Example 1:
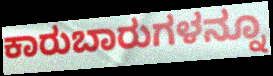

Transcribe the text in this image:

ಕಾರುಬಾರುಗಳನ್ನೂ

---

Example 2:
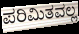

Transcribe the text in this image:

ಪರಿಮಿತವಲ್ಲ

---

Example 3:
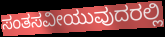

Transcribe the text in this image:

ಸಂತಸವೀಯುವುದರಲ್ಲಿ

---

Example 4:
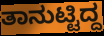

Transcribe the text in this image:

ತಾನುಟ್ಟಿದ್ದ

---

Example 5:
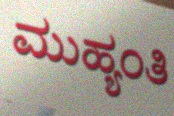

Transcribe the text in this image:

ಮುಹ್ಯಂತಿ